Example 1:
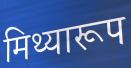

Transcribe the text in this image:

मिथ्यारूप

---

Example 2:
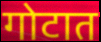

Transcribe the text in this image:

गोटात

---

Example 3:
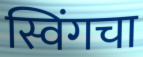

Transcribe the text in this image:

स्विंगचा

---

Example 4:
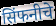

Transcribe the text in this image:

सिंफनीचे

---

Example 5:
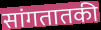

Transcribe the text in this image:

सांगतातकी